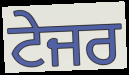
ਟੇਜਰ